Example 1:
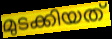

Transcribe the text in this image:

മുടക്കിയത്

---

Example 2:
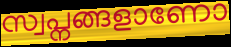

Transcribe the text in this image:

സ്വപ്നങ്ങളാണോ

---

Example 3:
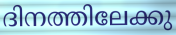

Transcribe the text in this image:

ദിനത്തിലേക്കു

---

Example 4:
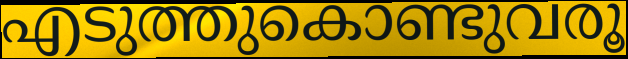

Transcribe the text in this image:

എടുത്തുകൊണ്ടുവരൂ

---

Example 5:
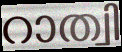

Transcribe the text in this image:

റാത്വി